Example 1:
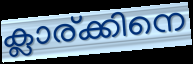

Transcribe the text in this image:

ക്ലാര്ക്കിനെ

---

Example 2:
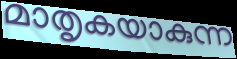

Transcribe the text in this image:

മാതൃകയാകുന്ന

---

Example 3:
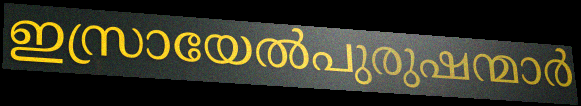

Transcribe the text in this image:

ഇസ്രായേൽപുരുഷന്മാർ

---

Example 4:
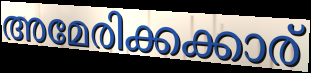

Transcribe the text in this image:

അമേരിക്കക്കാര്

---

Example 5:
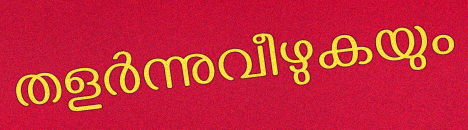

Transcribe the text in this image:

തളർന്നുവീഴുകയും